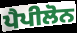
ਪੈਪੀਲੋਨ